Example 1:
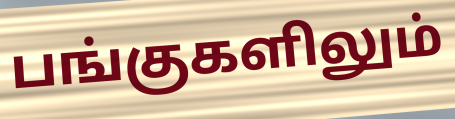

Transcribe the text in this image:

பங்குகளிலும்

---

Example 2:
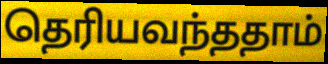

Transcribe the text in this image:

தெரியவந்ததாம்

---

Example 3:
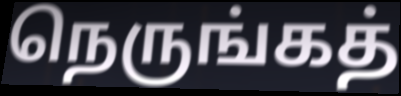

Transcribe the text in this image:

நெருங்கத்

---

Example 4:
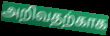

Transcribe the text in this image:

அறிவதற்காக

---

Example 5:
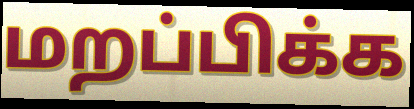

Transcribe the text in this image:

மறப்பிக்க